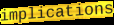
implications